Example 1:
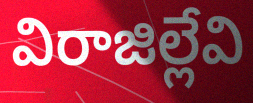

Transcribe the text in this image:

విరాజిల్లేవి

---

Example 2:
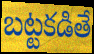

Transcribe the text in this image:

బట్టకడితే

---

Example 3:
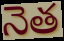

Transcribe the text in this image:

నెత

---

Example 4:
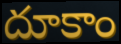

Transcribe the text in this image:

దూకాం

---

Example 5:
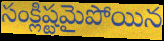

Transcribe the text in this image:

సంక్లిష్టమైపోయిన